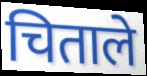
चिताले